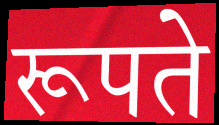
रूपते